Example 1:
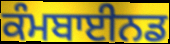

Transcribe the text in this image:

ਕੰਮਬਾਈਨਡ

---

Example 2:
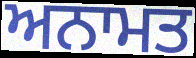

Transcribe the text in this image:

ਅਨਾਮਤ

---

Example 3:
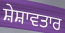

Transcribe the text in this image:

ਸ਼ੇਸ਼ਾਵਤਾਰ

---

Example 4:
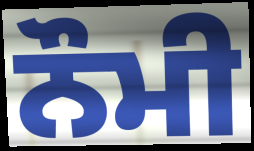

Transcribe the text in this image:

ਨੌਮੀ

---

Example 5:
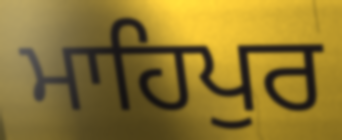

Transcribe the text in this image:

ਮਾਹਿਪੁਰ